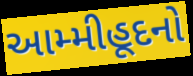
આમ્મીહૂદનો